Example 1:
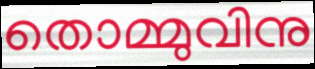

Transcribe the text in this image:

തൊമ്മുവിനു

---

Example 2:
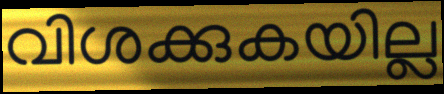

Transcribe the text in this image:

വിശക്കുകയില്ല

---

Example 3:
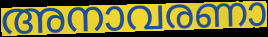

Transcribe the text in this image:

അനാവരണാ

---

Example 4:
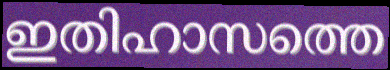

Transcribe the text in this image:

ഇതിഹാസത്തെ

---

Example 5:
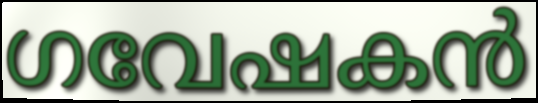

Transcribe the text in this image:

ഗവേഷകൻ